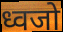
ध्वजो